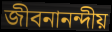
জীবনানন্দীয়